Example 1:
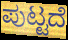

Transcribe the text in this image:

ಪುಟ್ಟದೆ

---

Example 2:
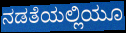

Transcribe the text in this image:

ನಡತೆಯಲ್ಲಿಯೂ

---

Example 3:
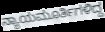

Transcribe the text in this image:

ನ್ಯಾಯಮೂರ್ತಿಗಳಿದ್ದ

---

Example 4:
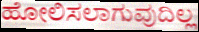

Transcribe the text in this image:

ಹೋಲಿಸಲಾಗುವುದಿಲ್ಲ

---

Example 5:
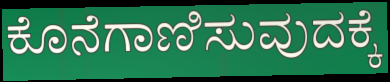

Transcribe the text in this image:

ಕೊನೆಗಾಣಿಸುವುದಕ್ಕೆ